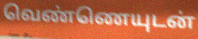
வெண்ணெயுடன்